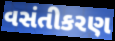
વસંતીકરણ